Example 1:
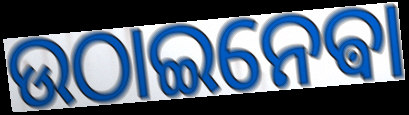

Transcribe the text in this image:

ଉଠାଇନେଵା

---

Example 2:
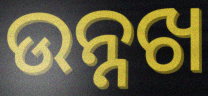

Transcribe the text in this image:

ଉନ୍ନଖ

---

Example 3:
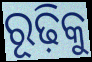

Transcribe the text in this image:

ରୂଢ଼ିକୁ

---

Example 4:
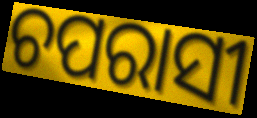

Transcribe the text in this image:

ଚପରାସୀ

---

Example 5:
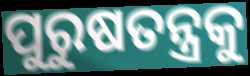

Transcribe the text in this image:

ପୁରୁଷତନ୍ତ୍ରକୁ